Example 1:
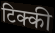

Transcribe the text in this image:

टिक्‍की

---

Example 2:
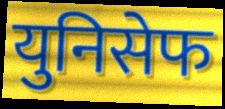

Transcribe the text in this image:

युनिसेफ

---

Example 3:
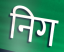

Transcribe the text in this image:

निग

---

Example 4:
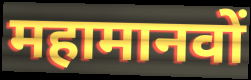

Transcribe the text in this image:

महामानवों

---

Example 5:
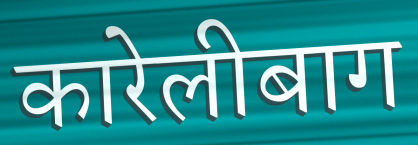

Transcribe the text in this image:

कारेलीबाग